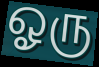
ஓரு